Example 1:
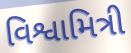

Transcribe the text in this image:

વિશ્વામિત્રી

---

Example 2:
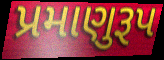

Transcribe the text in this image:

પ્રમાણુરૂપ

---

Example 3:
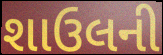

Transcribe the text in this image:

શાઉલની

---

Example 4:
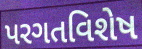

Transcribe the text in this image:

પરગતવિશેષ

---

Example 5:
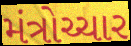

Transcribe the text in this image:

મંત્રોચ્ચાર